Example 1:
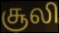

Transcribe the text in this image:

சூலி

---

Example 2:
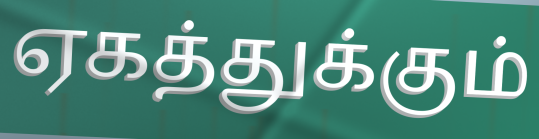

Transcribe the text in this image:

ஏகத்துக்கும்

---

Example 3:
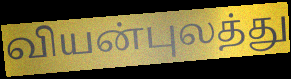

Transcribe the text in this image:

வியன்புலத்து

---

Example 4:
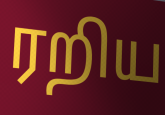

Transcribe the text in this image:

ரறிய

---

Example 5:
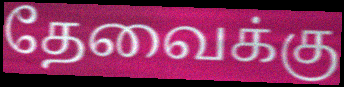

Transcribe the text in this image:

தேவைக்கு